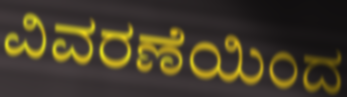
ವಿವರಣೆಯಿಂದ